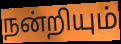
நன்றியும்